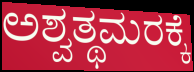
ಅಶ್ವತ್ಥಮರಕ್ಕೆ